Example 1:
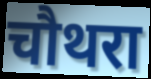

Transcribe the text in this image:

चौथरा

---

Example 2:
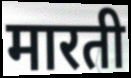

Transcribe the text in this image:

मारती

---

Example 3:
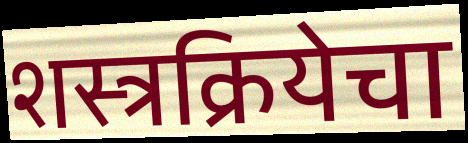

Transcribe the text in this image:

शस्त्रक्रियेचा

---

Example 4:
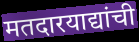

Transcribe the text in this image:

मतदारयाद्यांची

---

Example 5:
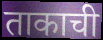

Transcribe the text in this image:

ताकाची